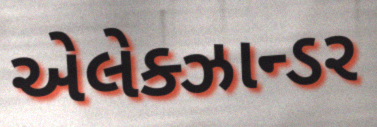
એલેક્ઝાન્ડર